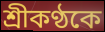
শ্রীকণ্ঠকে